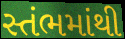
સ્તંભમાંથી